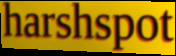
harshspot